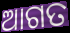
ଆଗତ